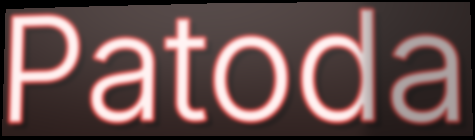
Patoda